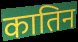
कातिन